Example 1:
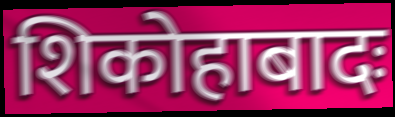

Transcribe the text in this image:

शिकोहाबादः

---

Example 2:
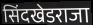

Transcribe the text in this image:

सिंदखेडराजा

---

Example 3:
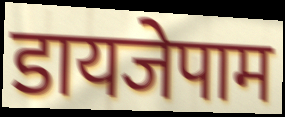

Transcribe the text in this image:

डायजेपाम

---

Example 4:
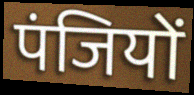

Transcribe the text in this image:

पंजियों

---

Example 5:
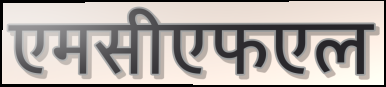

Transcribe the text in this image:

एमसीएफएल